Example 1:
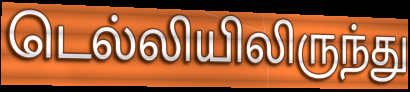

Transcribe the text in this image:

டெல்லியிலிருந்து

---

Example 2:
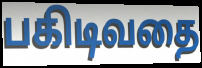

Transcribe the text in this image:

பகிடிவதை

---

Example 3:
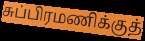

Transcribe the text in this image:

சுப்பிரமணிக்குத்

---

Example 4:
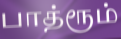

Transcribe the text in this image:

பாத்ரூம்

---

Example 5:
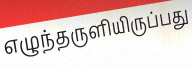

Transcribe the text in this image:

எழுந்தருளியிருப்பது